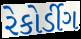
રેકોર્ડીગ